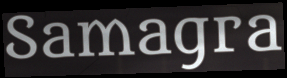
Samagra